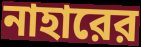
নাহারের